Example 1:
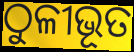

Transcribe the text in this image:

ଠୁଳୀଭୂତ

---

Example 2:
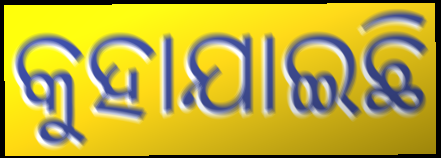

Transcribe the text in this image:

କୁହାଯାଇଛି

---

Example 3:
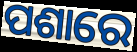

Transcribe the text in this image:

ପଶାରେ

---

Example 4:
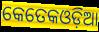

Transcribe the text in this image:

କେତେକଓଡ଼ିଆ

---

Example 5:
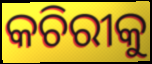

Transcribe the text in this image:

କଚିରୀକୁ